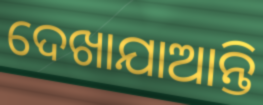
ଦେଖାଯାଆନ୍ତି